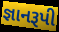
જ્ઞાનરૂપી